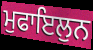
ਮੁਫਾਇਲੁਨ